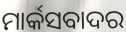
ମାର୍କସବାଦର